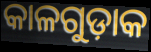
କାଳଗୁଡ଼ାକ